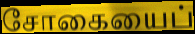
சோகையைப்